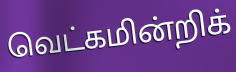
வெட்கமின்றிக்